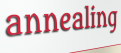
annealing